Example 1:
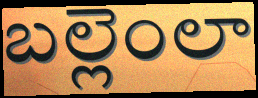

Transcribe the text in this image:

బల్లెంలా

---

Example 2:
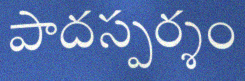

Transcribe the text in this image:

పాదస్పర్శం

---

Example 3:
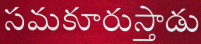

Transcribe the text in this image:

సమకూరుస్తాడు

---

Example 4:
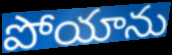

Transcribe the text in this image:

పోయాను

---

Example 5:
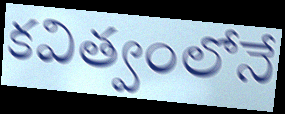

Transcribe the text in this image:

కవిత్వంలోనే